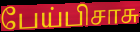
பேய்பிசாசு